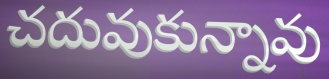
చదువుకున్నావు